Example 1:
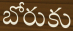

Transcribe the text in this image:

బోరుకు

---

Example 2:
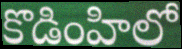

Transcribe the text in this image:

కొడింహిలో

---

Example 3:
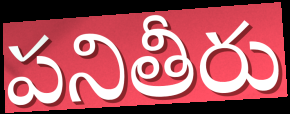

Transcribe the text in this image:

పనితీరు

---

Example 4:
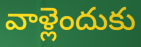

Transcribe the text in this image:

వాళ్లెందుకు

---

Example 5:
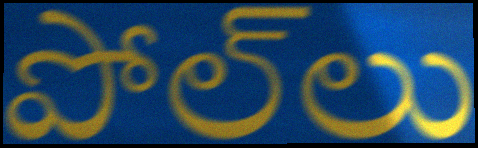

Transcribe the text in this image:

పోల్‌లు